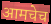
आमचेच